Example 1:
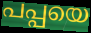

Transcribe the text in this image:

പപ്പയെ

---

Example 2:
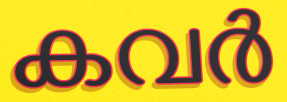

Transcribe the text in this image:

കവർ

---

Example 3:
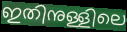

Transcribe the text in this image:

ഇതിനുള്ളിലെ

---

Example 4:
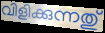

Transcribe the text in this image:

വിളിക്കുന്നതു്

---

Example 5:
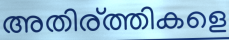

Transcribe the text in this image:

അതിര്ത്തികളെ